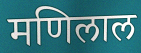
मणिलाल